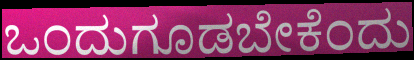
ಒಂದುಗೂಡಬೇಕೆಂದು